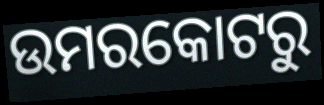
ଉମରକୋଟରୁ